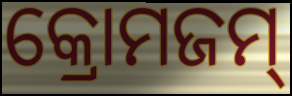
କ୍ରୋମଜମ୍